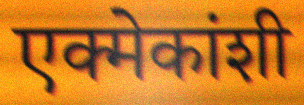
एक्मेकांशी